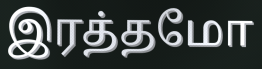
இரத்தமோ